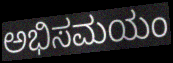
ಅಭಿಸಮಯಂ